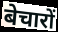
बेचारों